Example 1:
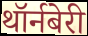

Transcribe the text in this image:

थॉर्नबेरी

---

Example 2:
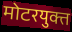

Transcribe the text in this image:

मोटरयुक्त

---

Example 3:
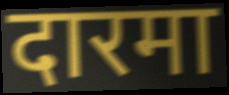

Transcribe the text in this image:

दारमा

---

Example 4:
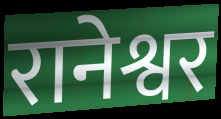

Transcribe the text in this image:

रानेश्वर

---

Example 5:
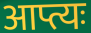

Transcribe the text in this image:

आप्त्यः